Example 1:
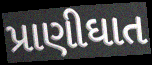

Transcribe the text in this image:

પ્રાણીઘાત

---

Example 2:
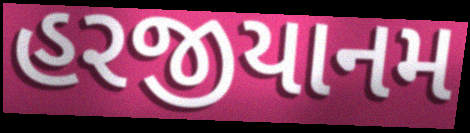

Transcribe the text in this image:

હરજીયાનમ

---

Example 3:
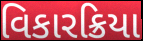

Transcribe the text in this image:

વિકારક્રિયા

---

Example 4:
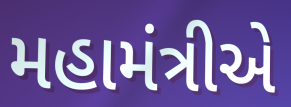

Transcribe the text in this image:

મહામંત્રીએ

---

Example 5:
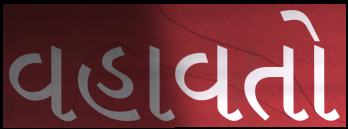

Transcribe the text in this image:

વહાવતો